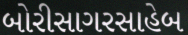
બોરીસાગરસાહેબ